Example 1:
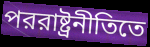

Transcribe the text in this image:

পররাষ্ট্রনীতিতে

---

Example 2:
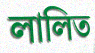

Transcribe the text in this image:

লালিত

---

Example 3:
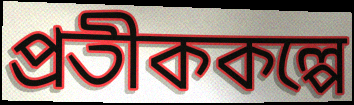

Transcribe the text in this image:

প্রতীককল্পে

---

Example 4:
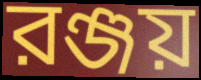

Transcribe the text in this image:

রঞ্জয়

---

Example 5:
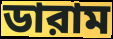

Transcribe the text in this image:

ডারাম